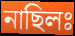
নাছিলঃ